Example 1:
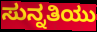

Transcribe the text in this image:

ಸುನ್ನತಿಯು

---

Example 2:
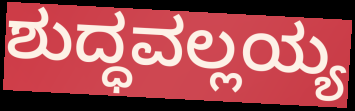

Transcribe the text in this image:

ಶುದ್ಧವಲ್ಲಯ್ಯ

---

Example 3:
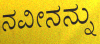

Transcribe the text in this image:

ನವೀನನ್ನು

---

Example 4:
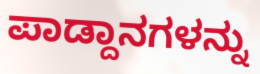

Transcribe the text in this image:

ಪಾಡ್ದಾನಗಳನ್ನು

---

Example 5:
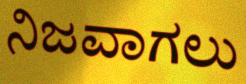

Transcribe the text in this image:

ನಿಜವಾಗಲು